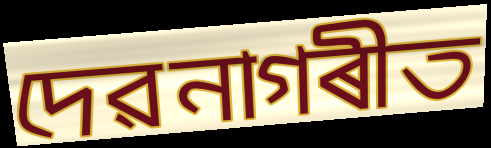
দেৱনাগৰীত